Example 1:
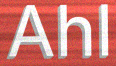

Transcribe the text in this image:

Ahl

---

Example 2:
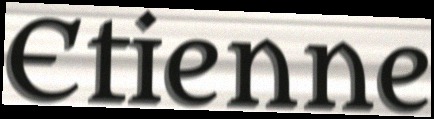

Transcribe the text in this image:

Etienne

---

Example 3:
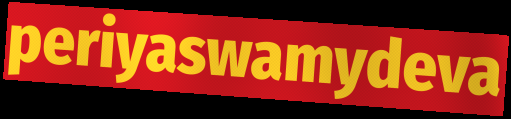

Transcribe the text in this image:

periyaswamydeva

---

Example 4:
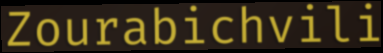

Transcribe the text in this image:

Zourabichvili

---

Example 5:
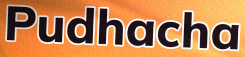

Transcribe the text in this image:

Pudhacha